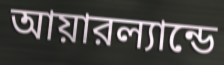
আয়ারল্যান্ডে